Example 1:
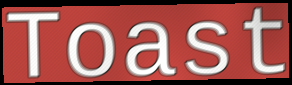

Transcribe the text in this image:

Toast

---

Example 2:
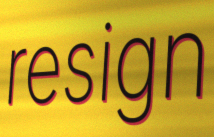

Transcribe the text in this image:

resign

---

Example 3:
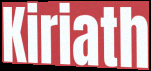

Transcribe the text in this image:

Kiriath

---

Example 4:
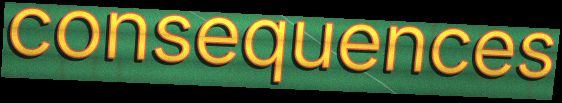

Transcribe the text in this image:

consequences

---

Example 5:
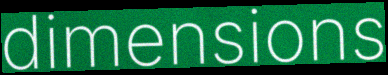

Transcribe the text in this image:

dimensions